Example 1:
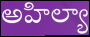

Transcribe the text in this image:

అహిల్యా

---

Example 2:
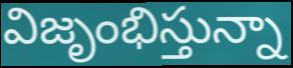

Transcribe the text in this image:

విజృంభిస్తున్నా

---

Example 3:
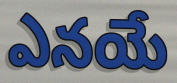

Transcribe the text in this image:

ఎనయే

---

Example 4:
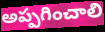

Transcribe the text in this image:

అప్పగించాలి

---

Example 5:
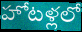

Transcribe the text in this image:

హోటళ్లలో